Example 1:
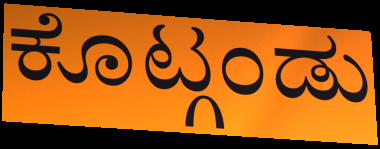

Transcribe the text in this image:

ಕೊಟ್ಗಂಡು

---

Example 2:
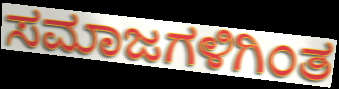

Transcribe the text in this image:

ಸಮಾಜಗಳಿಗಿಂತ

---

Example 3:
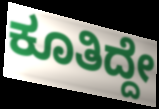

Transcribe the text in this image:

ಕೂತಿದ್ದೇ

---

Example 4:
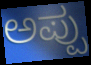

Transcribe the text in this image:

ಅಪ್ಪು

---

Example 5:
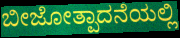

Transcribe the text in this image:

ಬೀಜೋತ್ಪಾದನೆಯಲ್ಲಿ